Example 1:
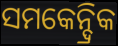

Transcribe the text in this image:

ସମକେନ୍ଦ୍ରିକ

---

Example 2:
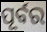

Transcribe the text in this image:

ପୂର୍ବର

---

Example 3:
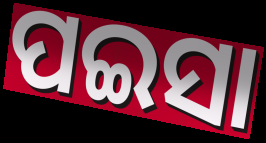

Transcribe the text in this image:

ପଇସା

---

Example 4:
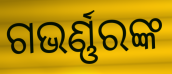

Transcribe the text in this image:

ଗଭର୍ଣ୍ଣରଙ୍କ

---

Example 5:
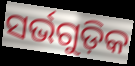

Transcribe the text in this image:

ସର୍ଭଗୁଡ଼ିକ